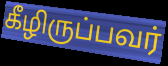
கீழிருப்பவர்